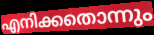
എനിക്കതൊന്നും